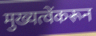
मुख्यत्वेंकरून